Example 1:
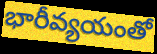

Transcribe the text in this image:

భారీవ్యయంతో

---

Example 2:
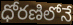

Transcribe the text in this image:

ధోరణిలోనే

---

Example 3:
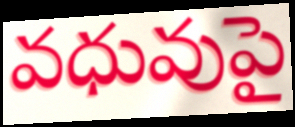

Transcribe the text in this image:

వధువుపై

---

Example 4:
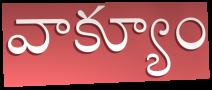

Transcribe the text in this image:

వాక్యూం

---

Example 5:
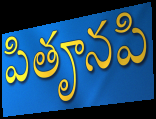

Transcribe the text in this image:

పితౄనపి